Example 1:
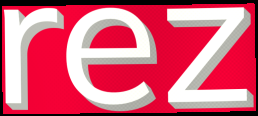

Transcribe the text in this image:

rez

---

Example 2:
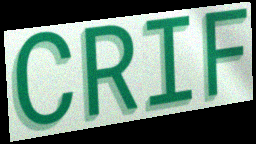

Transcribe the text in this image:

CRIF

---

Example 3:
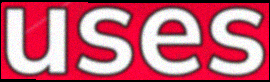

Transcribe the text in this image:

uses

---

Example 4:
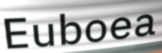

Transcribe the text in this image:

Euboea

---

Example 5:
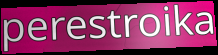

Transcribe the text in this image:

perestroika